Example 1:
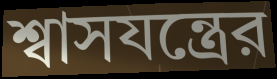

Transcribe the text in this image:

শ্বাসযন্ত্রের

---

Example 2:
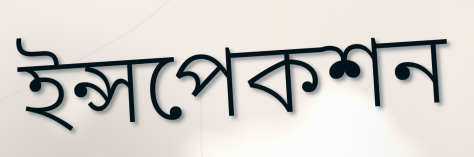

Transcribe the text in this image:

ইন্সপেকশন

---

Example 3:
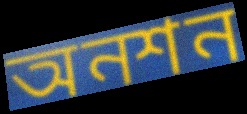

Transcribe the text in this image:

অনশন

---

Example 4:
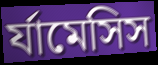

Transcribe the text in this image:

র্যামেসিস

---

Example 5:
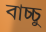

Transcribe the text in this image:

বাচ্চু